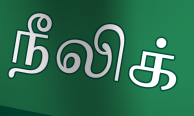
நீலிக்